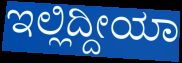
ಇಲ್ಲಿದ್ದೀಯಾ